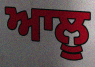
ਆਲੂ